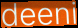
deeni